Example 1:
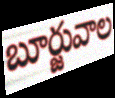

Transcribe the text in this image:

బూర్జువాల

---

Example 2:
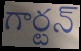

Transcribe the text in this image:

గార్టన్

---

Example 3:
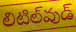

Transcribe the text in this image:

లిటిల్‌వుడ్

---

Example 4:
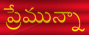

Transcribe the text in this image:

ప్రేమున్నా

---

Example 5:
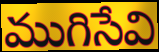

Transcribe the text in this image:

ముగిసేవి